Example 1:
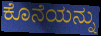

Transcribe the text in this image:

ಕೊನೆಯನ್ನು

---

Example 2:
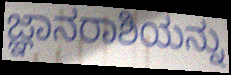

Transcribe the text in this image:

ಜ್ಞಾನರಾಶಿಯನ್ನು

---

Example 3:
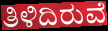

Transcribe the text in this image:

ತಿಳಿದಿರುವೆ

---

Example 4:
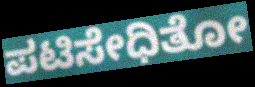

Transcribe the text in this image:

ಪಟಿಸೇಧಿತೋ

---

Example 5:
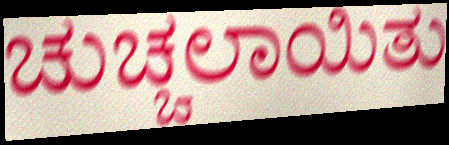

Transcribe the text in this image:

ಚುಚ್ಚಲಾಯಿತು